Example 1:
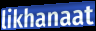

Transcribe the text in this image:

likhanaat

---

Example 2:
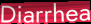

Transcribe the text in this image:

Diarrhea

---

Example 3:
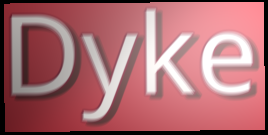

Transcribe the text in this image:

Dyke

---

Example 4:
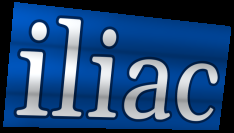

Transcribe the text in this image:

iliac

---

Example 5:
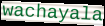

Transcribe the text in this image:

wachayala